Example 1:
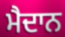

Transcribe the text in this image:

ਮੈਦਾਨ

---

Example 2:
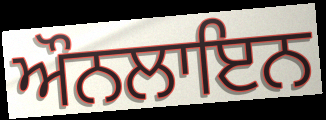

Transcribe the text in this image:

ਔਨਲਾਇਨ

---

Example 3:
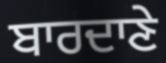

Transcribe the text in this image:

ਬਾਰਦਾਣੇ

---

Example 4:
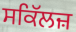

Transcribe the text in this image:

ਸਕਿੱਲਜ਼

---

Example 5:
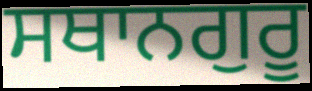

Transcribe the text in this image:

ਸਥਾਨਗੁਰੂ